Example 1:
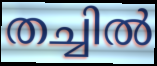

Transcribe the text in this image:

തച്ചിൽ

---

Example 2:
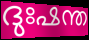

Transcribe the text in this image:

ദുഃഷന്ത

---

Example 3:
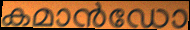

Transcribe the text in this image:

കമാൻഡോ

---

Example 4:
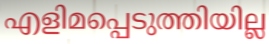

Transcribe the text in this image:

എളിമപ്പെടുത്തിയില്ല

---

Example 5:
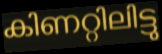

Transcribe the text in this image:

കിണറ്റിലിട്ടു